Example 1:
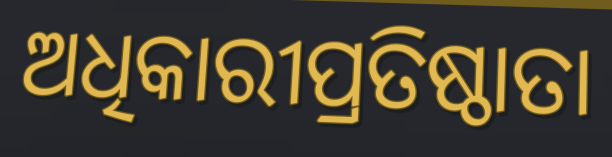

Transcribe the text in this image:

ଅଧିକାରୀପ୍ରତିଷ୍ଠାତା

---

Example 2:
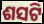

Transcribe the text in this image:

ଶସଟି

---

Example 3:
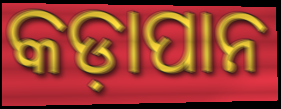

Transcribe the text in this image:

କଡ଼ାପାନ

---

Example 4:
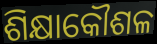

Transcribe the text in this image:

ଶିକ୍ଷାକୌଶଳ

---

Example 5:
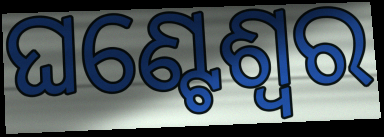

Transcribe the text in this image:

ଘଣ୍ଟେଶ୍ୱର